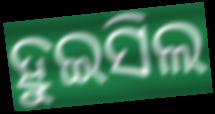
ହୁଇସିଲ